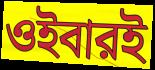
ওইবারই